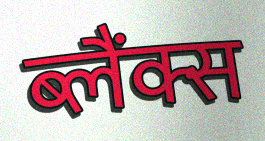
ब्लैंक्स